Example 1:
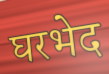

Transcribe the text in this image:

घरभेद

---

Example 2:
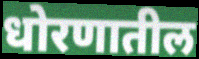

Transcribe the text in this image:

धोरणातील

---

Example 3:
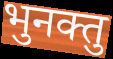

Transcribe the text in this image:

भुनक्तु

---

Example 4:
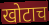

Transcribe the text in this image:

खोटाच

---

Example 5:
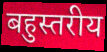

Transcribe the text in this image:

बहुस्तरीय